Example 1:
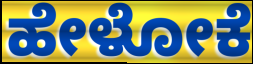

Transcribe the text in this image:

ಹೇಳೋಕೆ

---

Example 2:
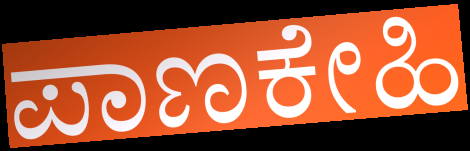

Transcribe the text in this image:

ಪಾಣಕೇಹಿ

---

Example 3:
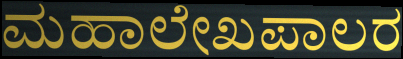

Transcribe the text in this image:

ಮಹಾಲೇಖಪಾಲರ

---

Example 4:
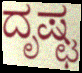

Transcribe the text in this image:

ದೃಷ್ಟ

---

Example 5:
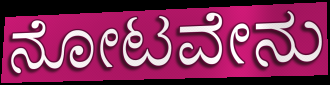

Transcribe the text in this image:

ನೋಟವೇನು